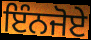
ਇੰਨਜੋਏ